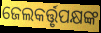
ଜେଲକର୍ତ୍ତୃପକ୍ଷଙ୍କ